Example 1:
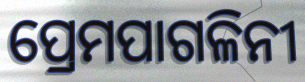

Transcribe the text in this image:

ପ୍ରେମପାଗଳିନୀ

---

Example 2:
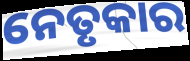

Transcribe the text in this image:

ନେତୃକାର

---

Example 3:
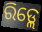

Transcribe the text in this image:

ରିଡ୍ଲେ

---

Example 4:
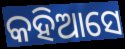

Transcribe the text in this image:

କହିଆସେ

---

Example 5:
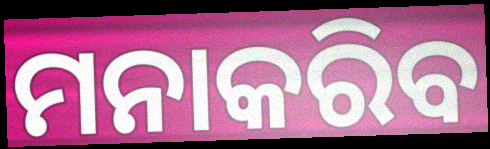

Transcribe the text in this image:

ମନାକରିବ